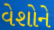
વેશોને